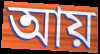
আয়